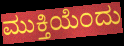
ಮುಕ್ತಿಯೆಂದು